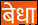
बेधा